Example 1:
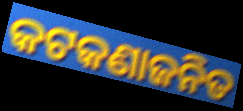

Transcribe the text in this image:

କଟକଣାଜନିତ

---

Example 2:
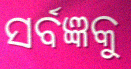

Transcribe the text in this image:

ସର୍ବଜ୍ଞକୁ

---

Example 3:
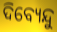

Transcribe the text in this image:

ଦିବ୍ୟେନ୍ଦୁ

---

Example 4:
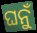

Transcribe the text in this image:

ଘନୁଁ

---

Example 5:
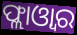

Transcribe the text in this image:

ଫ୍ଲାଓ୍ବାର